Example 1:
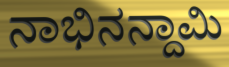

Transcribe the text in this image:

ನಾಭಿನನ್ದಾಮಿ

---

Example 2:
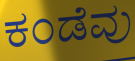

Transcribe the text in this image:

ಕಂಡೆವು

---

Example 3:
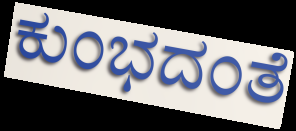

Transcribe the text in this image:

ಕುಂಭದಂತೆ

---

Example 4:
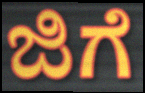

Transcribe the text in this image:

ಜಿಗೆ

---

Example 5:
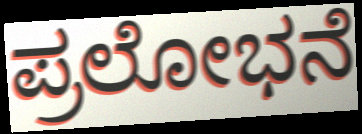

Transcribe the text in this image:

ಪ್ರಲೋಭನೆ